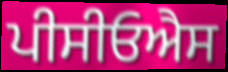
ਪੀਸੀਓਐਸ